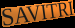
SAVITRI